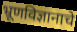
भ्रूणविज्ञानाचे